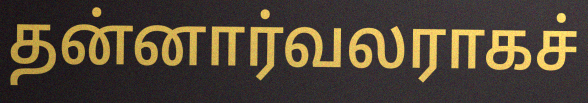
தன்னார்வலராகச்